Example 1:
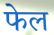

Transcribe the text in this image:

फेल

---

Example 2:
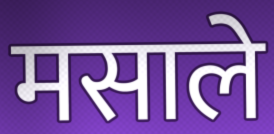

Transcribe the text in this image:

मसाले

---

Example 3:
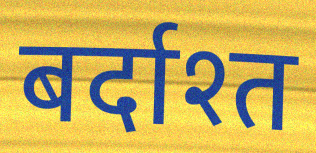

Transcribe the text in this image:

बर्दाश्त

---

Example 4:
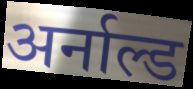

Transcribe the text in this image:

अर्नाल्ड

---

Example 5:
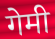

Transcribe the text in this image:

गेमी